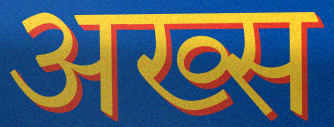
अख्स